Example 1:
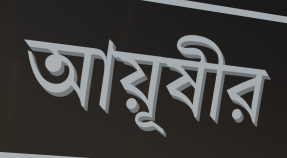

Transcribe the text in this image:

আয়ূষীর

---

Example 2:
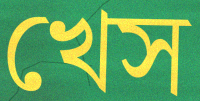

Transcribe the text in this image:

খেস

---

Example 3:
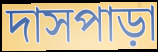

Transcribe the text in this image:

দাসপাড়া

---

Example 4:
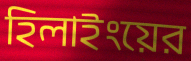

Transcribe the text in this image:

হিলাইংয়ের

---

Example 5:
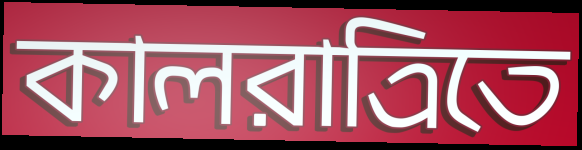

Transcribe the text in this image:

কালরাত্রিতে